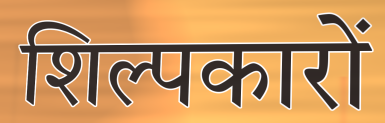
शिल्पकारों